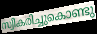
സ്വീകരിച്ചുകൊണ്ടു